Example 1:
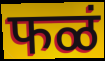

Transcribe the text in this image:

फळं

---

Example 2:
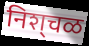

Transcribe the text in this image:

निश्चळ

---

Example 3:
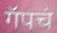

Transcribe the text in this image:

गॅपचं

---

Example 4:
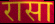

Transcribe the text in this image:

रासा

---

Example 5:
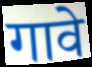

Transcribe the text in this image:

गावे